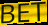
BET